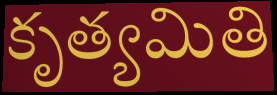
కృత్యమితి